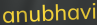
anubhavi